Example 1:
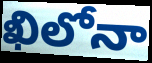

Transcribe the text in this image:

ఖిలోనా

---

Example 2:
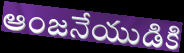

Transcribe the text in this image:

ఆంజనేయుడికి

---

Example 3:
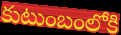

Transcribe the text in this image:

కుటుంబంలోకి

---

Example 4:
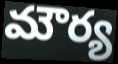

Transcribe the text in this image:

మౌర్య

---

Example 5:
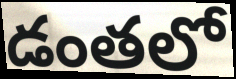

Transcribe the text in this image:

డంతలో